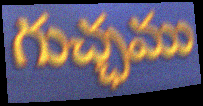
గుచ్ఛము